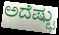
ಅದೆಷ್ಟು